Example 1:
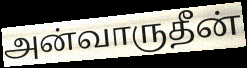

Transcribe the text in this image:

அன்வாருதீன்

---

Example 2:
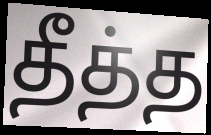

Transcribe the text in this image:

தீத்த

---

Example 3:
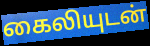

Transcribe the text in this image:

கைலியுடன்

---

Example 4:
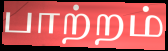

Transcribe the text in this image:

பாற்றம்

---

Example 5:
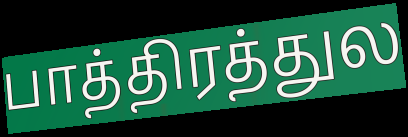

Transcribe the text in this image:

பாத்திரத்துல